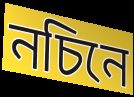
নচিনে